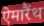
ऐमारैंथ